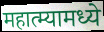
महात्म्यामध्ये